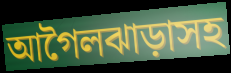
আগৈলঝাড়াসহ